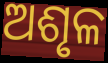
ଅଶୃଳ